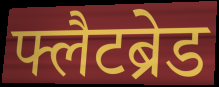
फ्लैटब्रेड